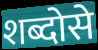
शब्दोसे